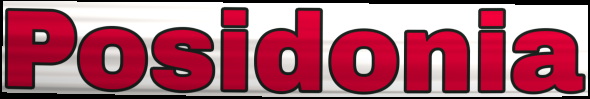
Posidonia